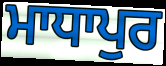
ਮਾਧਾਪੁਰ